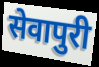
सेवापुरी